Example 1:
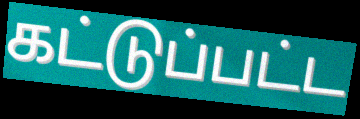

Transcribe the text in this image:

கட்டுப்பட்ட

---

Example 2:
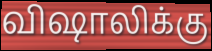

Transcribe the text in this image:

விஷாலிக்கு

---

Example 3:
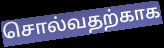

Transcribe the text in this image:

சொல்வதற்காக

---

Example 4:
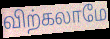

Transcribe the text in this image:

விற்கலாமே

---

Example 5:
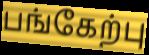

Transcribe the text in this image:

பங்கேற்பு